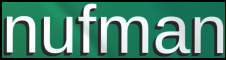
nufman